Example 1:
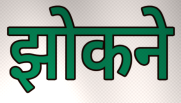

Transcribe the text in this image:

झोकने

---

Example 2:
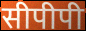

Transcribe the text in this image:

सीपीपी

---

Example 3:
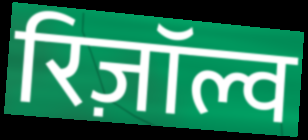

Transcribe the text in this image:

रिज़ॉल्व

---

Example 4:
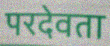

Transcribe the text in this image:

परदेवता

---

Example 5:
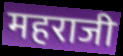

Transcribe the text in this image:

महराजी